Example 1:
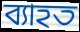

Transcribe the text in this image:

ব্যাহত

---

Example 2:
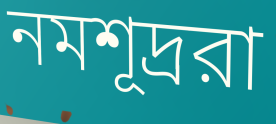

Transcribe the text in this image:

নমশূদ্ররা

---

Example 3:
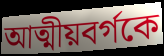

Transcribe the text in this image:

আত্মীয়বর্গকে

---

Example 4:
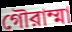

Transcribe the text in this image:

গৌরাম্মা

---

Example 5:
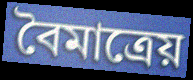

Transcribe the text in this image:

বৈমাত্রেয়